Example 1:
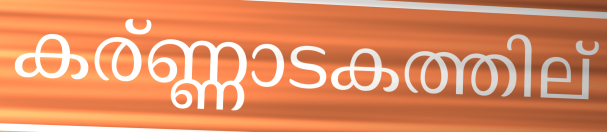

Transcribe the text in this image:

കര്ണ്ണാടകത്തില്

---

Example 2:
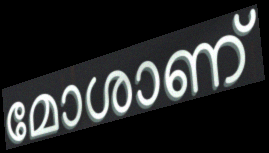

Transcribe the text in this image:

മോശാണ്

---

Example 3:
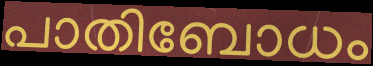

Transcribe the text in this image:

പാതിബോധം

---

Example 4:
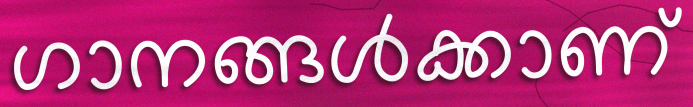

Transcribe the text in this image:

ഗാനങ്ങൾക്കാണ്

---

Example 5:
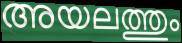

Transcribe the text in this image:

അയലത്തും